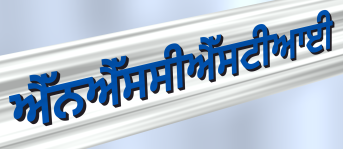
ਐੱਨਐੱਸਸੀਐੱਸਟੀਆਈ